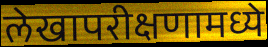
लेखापरीक्षणामध्ये